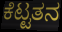
ಕೆಟ್ಟತನ